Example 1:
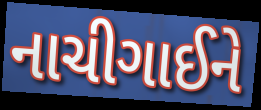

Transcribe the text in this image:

નાચીગાઈને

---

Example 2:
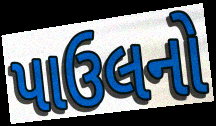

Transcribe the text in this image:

પાઉલનો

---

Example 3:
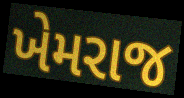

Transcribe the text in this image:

ખેમરાજ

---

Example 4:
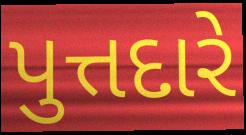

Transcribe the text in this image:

પુત્તદારે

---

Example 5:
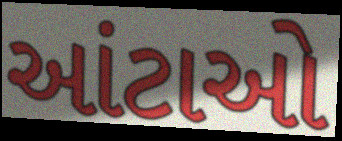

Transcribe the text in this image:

આંટાઓ